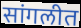
सांगलीत